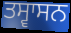
ਤਸ੍ਵਾਸਨ